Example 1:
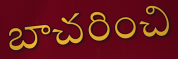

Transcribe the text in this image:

బాచరించి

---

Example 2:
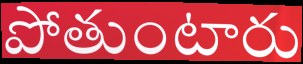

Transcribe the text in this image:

పోతుంటారు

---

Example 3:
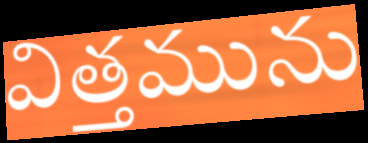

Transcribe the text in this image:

విత్తమును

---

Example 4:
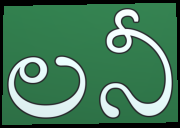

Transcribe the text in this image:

లనీ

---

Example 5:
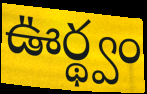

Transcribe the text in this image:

ఊర్థ్వం